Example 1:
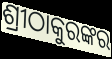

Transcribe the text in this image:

ଶ୍ରୀଠାକୁରଙ୍କର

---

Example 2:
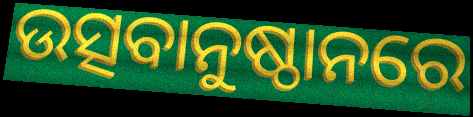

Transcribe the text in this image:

ଉତ୍ସବାନୁଷ୍ଠାନରେ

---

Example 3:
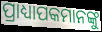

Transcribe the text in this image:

ପ୍ରାଧ୍ୟାପକମାନଙ୍କୁ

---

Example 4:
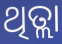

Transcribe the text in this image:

ଥିତ୍ଲା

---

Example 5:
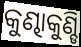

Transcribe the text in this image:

କୁଣ୍ଢାକୁଣ୍ଡି